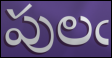
పులఁ